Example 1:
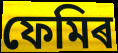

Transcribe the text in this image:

ফেমিৰ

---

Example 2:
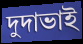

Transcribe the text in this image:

দুদাভাই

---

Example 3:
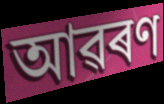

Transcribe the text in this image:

আৱৰণ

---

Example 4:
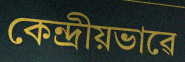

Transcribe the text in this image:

কেন্দ্ৰীয়ভাৱে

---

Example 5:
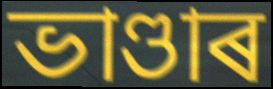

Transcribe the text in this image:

ভাণ্ডাৰ